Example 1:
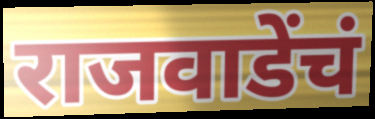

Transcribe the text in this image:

राजवाडेंचं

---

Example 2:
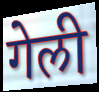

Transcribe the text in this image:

गेली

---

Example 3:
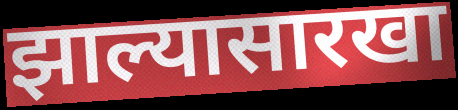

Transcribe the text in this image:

झाल्यासारखा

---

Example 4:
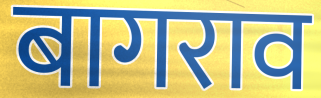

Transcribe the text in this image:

बागराव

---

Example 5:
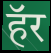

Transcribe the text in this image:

हॅर